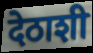
देठाशी